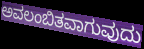
ಅವಲಂಬಿತವಾಗುವುದು